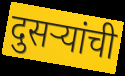
दुसऱ्यांची